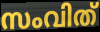
സംവിത്